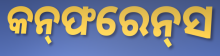
କନ୍‌ଫରେନ୍‌ସ